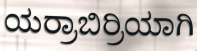
ಯರ್ರಾಬಿರ್ರಿಯಾಗಿ